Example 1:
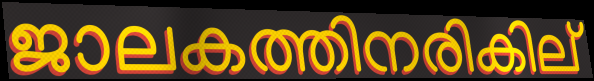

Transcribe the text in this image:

ജാലകത്തിനരികില്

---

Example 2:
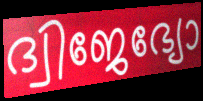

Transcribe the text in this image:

ദ്വിജേഭ്യോ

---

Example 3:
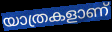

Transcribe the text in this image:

യാത്രകളാണ്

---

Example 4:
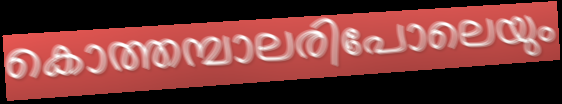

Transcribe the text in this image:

കൊത്തമ്പാലരിപോലെയും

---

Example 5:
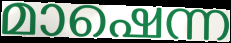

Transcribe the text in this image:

മാഷെന്ന